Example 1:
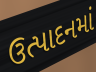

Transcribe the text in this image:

ઉત્પાદનમાં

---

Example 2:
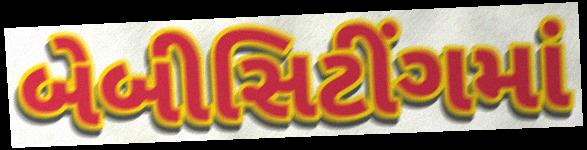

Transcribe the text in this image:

બેબીસિટીંગમાં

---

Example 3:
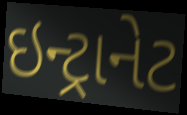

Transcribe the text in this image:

ઇન્ટ્રાનેટ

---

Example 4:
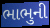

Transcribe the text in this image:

ભાભુની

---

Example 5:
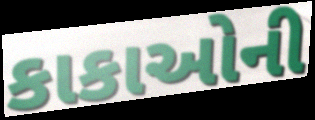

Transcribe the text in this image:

કાકાઓની